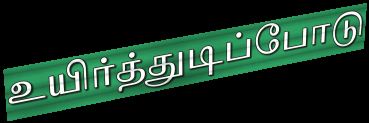
உயிர்த்துடிப்போடு